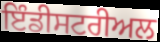
ਇੰਡੀਸਟਰੀਅਲ